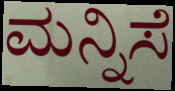
ಮನ್ನಿಸೆ